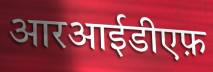
आरआईडीएफ़